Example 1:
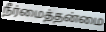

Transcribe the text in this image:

நீர்மைத்தன்மை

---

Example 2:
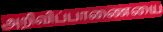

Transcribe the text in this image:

அறிவிப்பாணையை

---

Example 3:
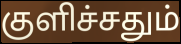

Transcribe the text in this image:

குளிச்சதும்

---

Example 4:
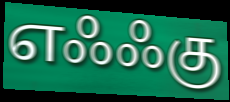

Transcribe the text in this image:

எஃஃகு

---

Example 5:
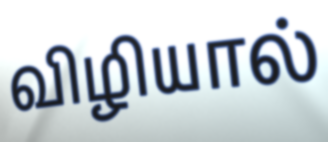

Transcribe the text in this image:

விழியால்